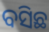
ବସିଛ